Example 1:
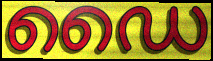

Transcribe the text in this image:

ഡൈ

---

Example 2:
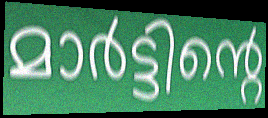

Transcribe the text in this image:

മാർട്ടിന്റെ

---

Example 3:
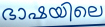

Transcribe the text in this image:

ഭാഷയിലെ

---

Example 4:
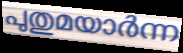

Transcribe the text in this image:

പുതുമയാർന്ന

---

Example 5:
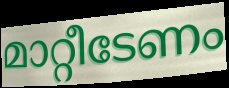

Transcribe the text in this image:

മാറ്റീടേണം